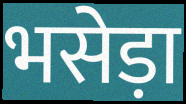
भसेड़ा